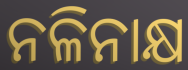
ନଳିନାକ୍ଷ